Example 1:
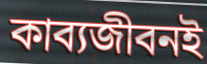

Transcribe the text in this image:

কাব্যজীবনই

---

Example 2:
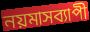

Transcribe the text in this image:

নয়মাসব্যাপী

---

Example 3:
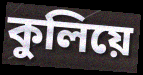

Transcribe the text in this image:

কুলিয়ে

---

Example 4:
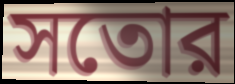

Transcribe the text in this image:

সতোর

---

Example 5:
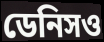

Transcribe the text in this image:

ডেনিসও